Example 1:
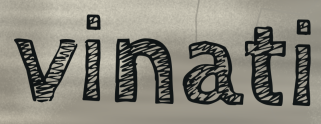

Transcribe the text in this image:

vinati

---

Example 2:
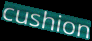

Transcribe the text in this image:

cushion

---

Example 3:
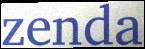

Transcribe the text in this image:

zenda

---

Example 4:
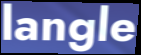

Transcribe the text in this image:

langle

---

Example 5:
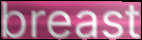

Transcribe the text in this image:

breast